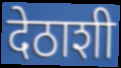
देठाशी